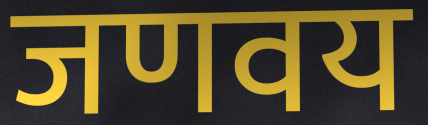
जणवय